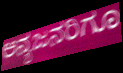
ಅನ್ಯಜನರಿಗೂ